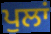
ਪੁਲਾਂ